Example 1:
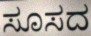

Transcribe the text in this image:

ಸೂಸದ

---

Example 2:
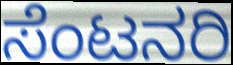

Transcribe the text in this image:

ಸೆಂಟನರಿ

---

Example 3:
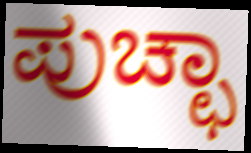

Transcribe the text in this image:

ಪುಚ್ಛಾ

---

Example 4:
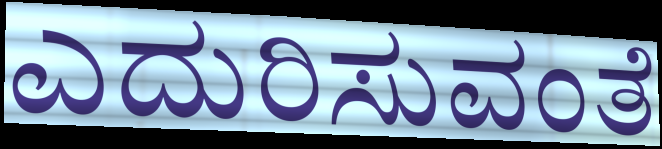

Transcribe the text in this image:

ಎದುರಿಸುವಂತೆ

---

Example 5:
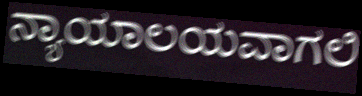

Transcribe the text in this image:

ನ್ಯಾಯಾಲಯವಾಗಲಿ